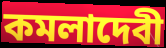
কমলাদেবী